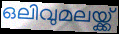
ഒലിവുമലയ്ക്ക്